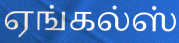
ஏங்கல்ஸ்